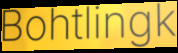
Bohtlingk